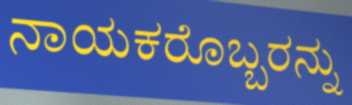
ನಾಯಕರೊಬ್ಬರನ್ನು